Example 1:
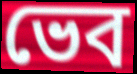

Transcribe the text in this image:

ভেব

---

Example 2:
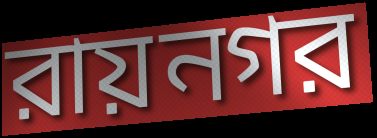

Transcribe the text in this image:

রায়নগর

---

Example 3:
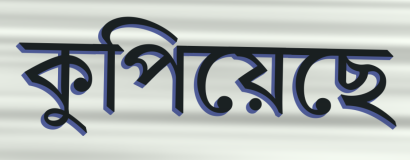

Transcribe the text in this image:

কুপিয়েছে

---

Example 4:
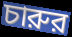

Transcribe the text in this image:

চারুর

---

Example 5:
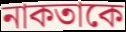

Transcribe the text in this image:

নাকতাকে